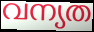
വന്യത